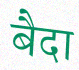
बैदा